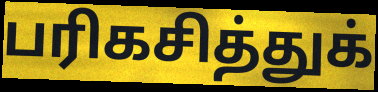
பரிகசித்துக்